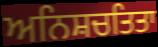
ਅਨਿਸ਼ਚਤਿਤਾ